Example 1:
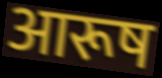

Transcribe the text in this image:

आरूष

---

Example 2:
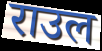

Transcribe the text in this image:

राउल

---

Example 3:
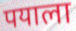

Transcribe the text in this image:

पयाला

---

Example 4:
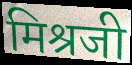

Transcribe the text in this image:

मिश्रजी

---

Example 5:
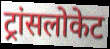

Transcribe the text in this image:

ट्रांसलोकेट